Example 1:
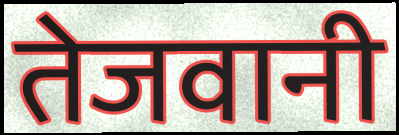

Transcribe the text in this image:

तेजवानी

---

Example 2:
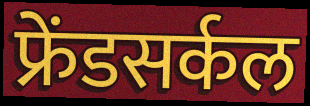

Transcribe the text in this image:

फ्रेंडसर्कल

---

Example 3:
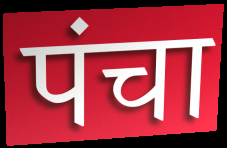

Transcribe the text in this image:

पंचा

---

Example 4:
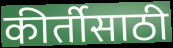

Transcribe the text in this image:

कीर्तीसाठी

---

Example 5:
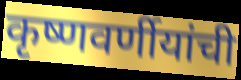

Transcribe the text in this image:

कृष्णवर्णीयांची